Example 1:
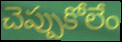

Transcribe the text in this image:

చెప్పుకోలేం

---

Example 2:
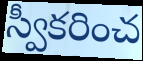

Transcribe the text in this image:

స్వీకరించ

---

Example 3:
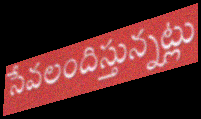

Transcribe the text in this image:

సేవలందిస్తున్నట్లు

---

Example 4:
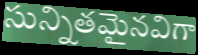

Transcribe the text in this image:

సున్నితమైనవిగా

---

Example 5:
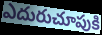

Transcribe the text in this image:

ఎదురుచూపుకి